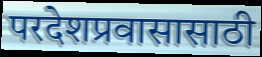
परदेशप्रवासासाठी